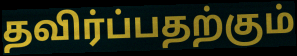
தவிர்ப்பதற்கும்